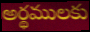
అర్థములకు